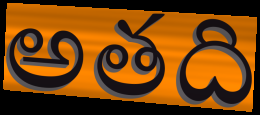
అతది